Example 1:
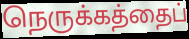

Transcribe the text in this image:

நெருக்கத்தைப்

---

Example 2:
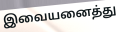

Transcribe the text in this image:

இவையனைத்து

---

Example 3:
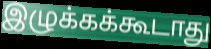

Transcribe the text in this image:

இழுக்கக்கூடாது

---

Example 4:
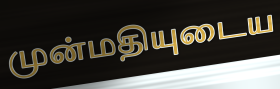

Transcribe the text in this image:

முன்மதியுடைய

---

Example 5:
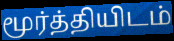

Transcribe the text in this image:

மூர்த்தியிடம்